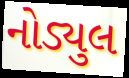
નોડ્યુલ